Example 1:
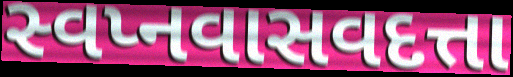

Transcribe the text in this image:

સ્વપ્નવાસવદત્તા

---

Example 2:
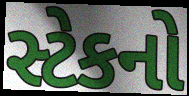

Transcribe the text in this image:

સ્ટેકનો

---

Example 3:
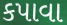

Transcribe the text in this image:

કપાવા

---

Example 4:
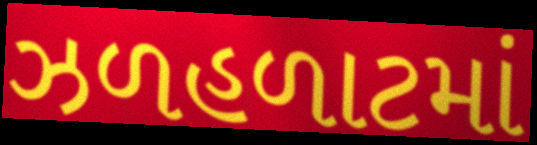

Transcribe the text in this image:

ઝળહળાટમાં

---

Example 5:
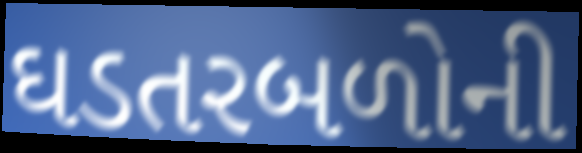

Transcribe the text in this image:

ઘડતરબળોની